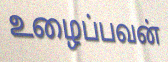
உழைப்பவன்